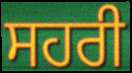
ਸਹਰੀ